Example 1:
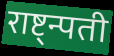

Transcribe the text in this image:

राष्ट्न्पती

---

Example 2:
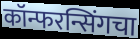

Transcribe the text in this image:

कॉन्फरन्सिंगचा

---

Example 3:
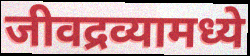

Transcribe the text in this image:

जीवद्रव्यामध्ये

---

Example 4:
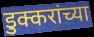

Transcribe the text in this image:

डुक्करांच्या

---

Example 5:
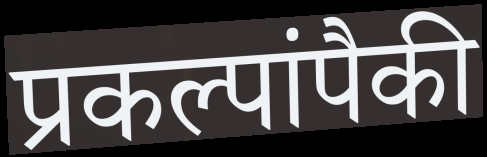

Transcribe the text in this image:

प्रकल्पांपैकी